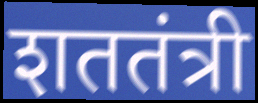
शततंत्री